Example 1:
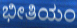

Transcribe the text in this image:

ಭೀತಿಯಂ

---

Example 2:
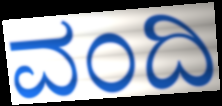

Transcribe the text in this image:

ವಂದಿ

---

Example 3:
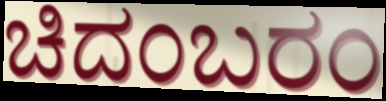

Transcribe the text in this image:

ಚಿದಂಬರಂ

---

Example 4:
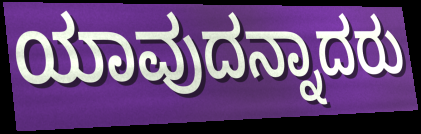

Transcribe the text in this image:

ಯಾವುದನ್ನಾದರು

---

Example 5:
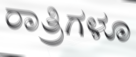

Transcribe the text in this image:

ರಾತ್ರಿಗಳೂ